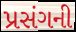
પ્રસંગની